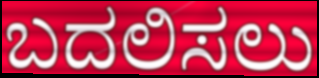
ಬದಲಿಸಲು